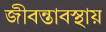
জীবন্তাবস্থায়